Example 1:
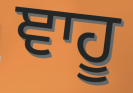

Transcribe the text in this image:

ਞਾਹੂ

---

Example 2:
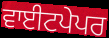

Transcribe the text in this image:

ਵਾਈਟਪੇਪਰ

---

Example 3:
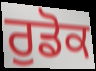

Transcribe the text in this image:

ਰੁਡੋਕ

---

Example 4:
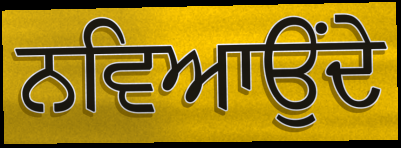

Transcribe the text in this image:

ਨਵਿਆਉਂਦੇ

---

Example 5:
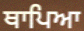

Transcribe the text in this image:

ਥਾਪਿਆ